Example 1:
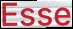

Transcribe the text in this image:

Esse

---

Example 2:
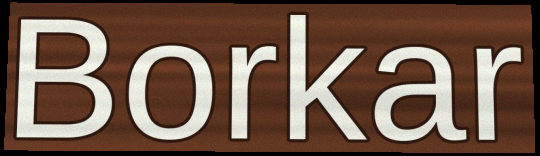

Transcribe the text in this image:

Borkar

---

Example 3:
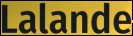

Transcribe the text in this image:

Lalande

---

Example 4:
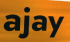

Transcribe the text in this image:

ajay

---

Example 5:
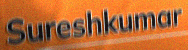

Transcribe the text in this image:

Sureshkumar